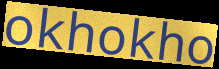
okhokho